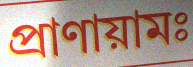
প্রাণায়ামঃ